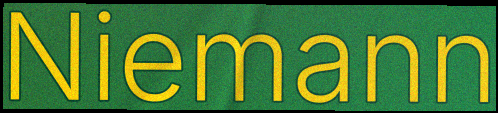
Niemann